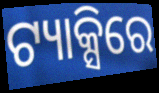
ଟ୍ୟାକ୍ସିରେ